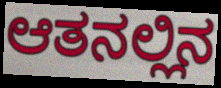
ಆತನಲ್ಲಿನ